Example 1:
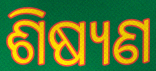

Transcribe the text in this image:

ଶିଷ୍ୟଣ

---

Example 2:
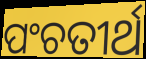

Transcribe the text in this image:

ପଂଚତୀର୍ଥ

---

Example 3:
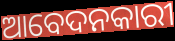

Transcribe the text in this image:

ଆବେଦନକାରୀ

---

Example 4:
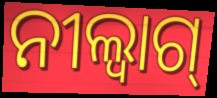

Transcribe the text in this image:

ନୀଲ୍ବାଗ୍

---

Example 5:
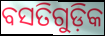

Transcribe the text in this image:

ବସତିଗୁଡ଼ିକ